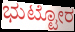
ಭುಟ್ಟೋರ